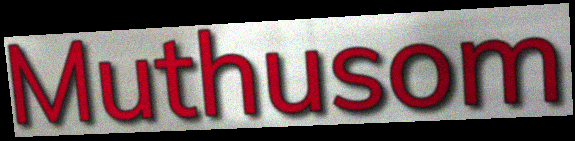
Muthusom